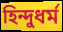
হিন্দুধর্ম